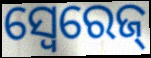
ସ୍ୱେରେଜ୍